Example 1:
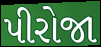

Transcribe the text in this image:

પીરોજા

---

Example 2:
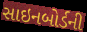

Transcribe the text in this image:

સાઇનબોર્ડની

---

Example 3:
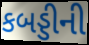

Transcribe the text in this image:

કબડ્ડીની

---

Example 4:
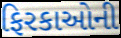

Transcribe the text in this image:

ફિરકાઓની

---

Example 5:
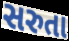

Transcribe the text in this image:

સરુતા